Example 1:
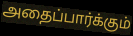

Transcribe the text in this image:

அதைப்பார்க்கும்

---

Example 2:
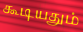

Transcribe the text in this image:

கூடியதும்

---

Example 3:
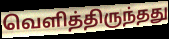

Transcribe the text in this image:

வெளித்திருந்தது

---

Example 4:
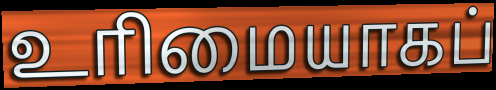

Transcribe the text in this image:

உரிமையாகப்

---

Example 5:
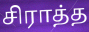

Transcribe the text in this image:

சிராத்த